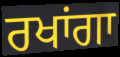
ਰਖਾਂਗਾ